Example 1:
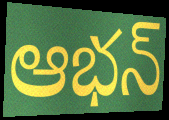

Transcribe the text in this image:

ఆభన్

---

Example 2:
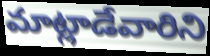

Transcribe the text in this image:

మాట్లాడేవారిని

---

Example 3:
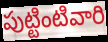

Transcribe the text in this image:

పుట్టింటివారి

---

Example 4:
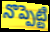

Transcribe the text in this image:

నొప్పెట్టి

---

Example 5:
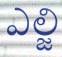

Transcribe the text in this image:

ఎల్జి